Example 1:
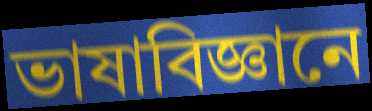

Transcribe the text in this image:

ভাষাবিজ্ঞানে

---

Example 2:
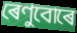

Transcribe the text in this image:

ৰেণুবোৰে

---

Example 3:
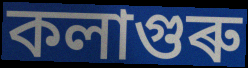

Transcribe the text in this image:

কলাগুৰু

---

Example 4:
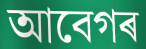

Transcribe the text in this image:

আবেগৰ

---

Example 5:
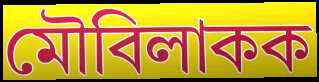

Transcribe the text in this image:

মৌবিলাকক